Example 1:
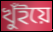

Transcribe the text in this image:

খুঁইয়ে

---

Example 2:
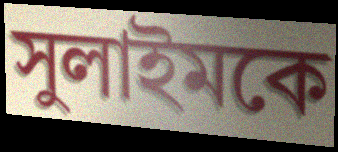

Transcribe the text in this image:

সুলাইমকে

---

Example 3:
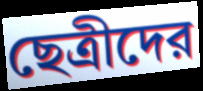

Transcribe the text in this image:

ছেত্রীদের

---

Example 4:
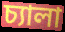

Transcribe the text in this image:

চ্যালা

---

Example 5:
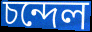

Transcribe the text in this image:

চন্দেল